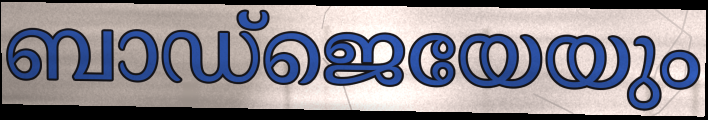
ബാഡ്ജെയേയും